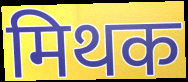
मिथक